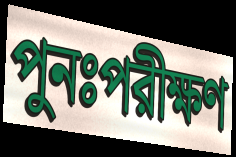
পুনঃপরীক্ষণ